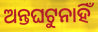
ଅନ୍ତଘଟୁନାହିଁ